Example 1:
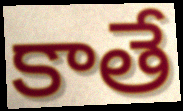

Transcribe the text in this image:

కాతే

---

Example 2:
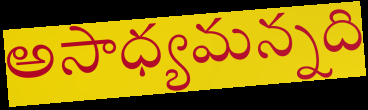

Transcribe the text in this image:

అసాధ్యమన్నది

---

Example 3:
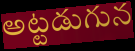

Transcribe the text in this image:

అట్టడుగున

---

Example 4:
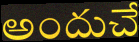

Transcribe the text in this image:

అందుచే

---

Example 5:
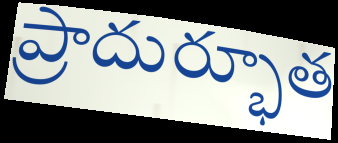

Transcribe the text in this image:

ప్రాదుర్భూత